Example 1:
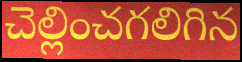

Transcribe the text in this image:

చెల్లించగలిగిన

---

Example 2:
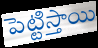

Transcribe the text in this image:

పెట్టిస్తాయి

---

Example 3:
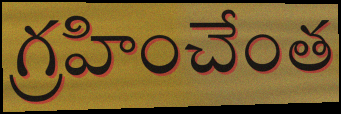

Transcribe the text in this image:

గ్రహించేంత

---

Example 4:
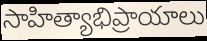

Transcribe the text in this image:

సాహిత్యాభిప్రాయాలు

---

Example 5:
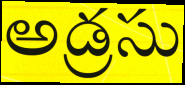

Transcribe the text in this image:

అడ్రసు